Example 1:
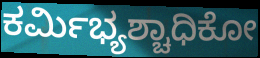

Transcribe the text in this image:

ಕರ್ಮಿಭ್ಯಶ್ಚಾಧಿಕೋ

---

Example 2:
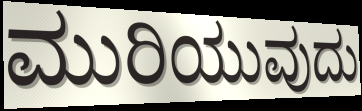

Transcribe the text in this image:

ಮುರಿಯುವುದು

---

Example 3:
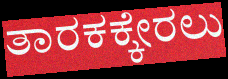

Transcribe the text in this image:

ತಾರಕಕ್ಕೇರಲು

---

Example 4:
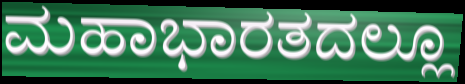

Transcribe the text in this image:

ಮಹಾಭಾರತದಲ್ಲೂ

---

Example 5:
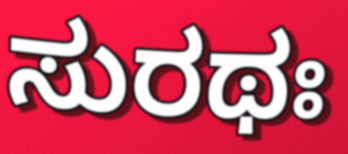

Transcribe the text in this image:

ಸುರಥಃ